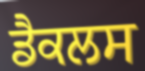
ਡੈਕਲਸ